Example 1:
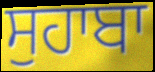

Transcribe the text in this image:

ਸੁਹਾਬਾ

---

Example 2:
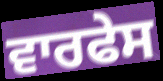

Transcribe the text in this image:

ਵਾਰਫੇਸ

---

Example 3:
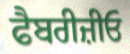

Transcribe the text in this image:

ਫੈਬਰੀਜ਼ੀਓ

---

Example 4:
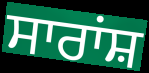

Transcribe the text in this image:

ਸਾਰਾਂਸ਼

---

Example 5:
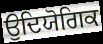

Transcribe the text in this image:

ਉਦਿਯੋਗਿਕ